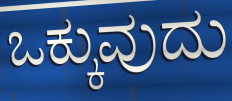
ಒಕ್ಕುವುದು